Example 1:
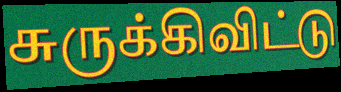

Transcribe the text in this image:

சுருக்கிவிட்டு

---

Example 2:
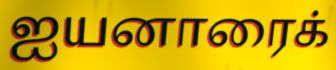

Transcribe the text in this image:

ஐயனாரைக்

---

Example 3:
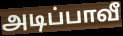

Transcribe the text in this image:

அடிப்பாவீ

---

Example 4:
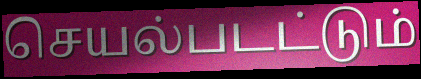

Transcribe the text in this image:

செயல்படட்டும்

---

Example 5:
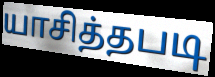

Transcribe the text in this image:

யாசித்தபடி